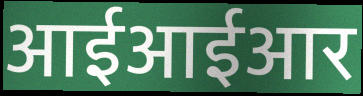
आईआईआर